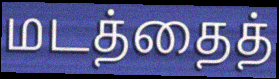
மடத்தைத்